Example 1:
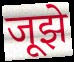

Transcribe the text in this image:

जूझे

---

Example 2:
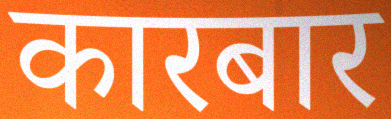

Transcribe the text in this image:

कारबार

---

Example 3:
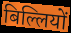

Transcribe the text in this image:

बिल्लियों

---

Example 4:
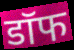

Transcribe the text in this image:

डॉफ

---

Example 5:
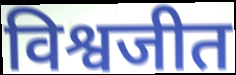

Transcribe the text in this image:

विश्वजीत